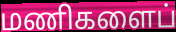
மணிகளைப்